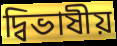
দ্বিভাষীয়